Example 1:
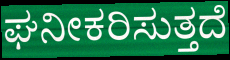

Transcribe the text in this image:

ಘನೀಕರಿಸುತ್ತದೆ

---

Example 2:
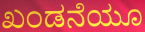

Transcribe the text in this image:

ಖಂಡನೆಯೂ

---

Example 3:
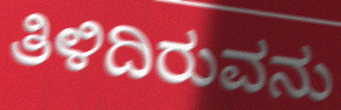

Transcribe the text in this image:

ತಿಳಿದಿರುವನು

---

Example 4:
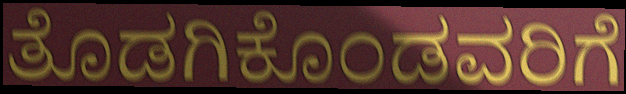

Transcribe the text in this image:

ತೊಡಗಿಕೊಂಡವರಿಗೆ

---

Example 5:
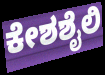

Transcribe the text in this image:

ಕೇಶಶೈಲಿ